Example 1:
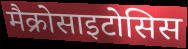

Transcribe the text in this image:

मैक्रोसाइटोसिस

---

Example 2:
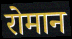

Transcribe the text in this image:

रोमान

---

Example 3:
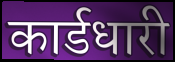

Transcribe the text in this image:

कार्डधारी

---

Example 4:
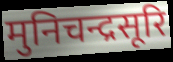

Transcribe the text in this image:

मुनिचन्द्रसूरि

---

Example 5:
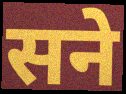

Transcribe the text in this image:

सने